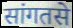
सांगतसे